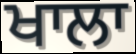
ਖਾਲਾ